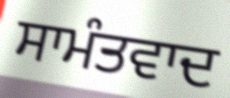
ਸਾਮੰਤਵਾਦ